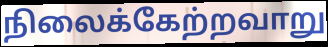
நிலைக்கேற்றவாறு